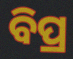
ବିପ୍ର